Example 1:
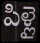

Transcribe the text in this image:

పిళ్లై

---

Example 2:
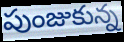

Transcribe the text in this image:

పుంజుకున్న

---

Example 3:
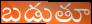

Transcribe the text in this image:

బడుతూ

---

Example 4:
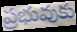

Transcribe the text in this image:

ప్రభువుకు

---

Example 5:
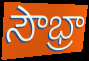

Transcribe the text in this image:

సౌభ్రా